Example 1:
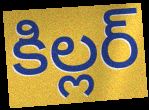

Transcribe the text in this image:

కిల్లర్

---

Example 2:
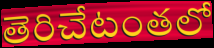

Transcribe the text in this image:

తెరిచేటంతలో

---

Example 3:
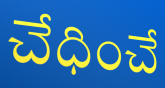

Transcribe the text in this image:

చేధించే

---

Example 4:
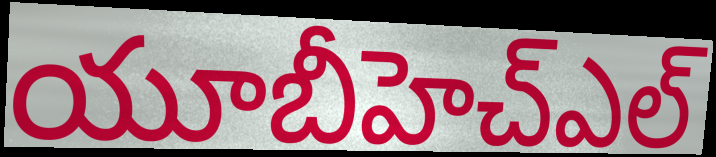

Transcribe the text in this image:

యూబీహెచ్ఎల్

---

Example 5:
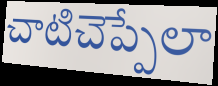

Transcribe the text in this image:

చాటిచెప్పేలా